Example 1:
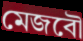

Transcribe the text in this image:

মেজবৌ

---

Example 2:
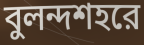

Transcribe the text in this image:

বুলন্দশহরে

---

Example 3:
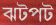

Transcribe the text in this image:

ঝটপট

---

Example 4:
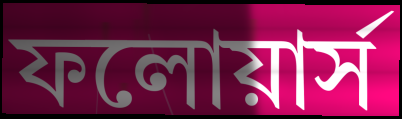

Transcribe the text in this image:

ফলোয়ার্স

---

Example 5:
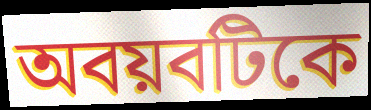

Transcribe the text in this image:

অবয়বটিকে